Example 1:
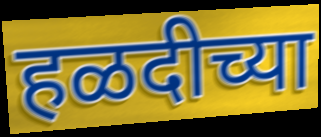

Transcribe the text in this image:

हळदीच्या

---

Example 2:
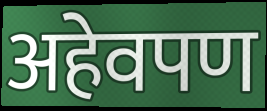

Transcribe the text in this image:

अहेवपण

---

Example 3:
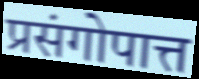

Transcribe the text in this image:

प्रसंगोपात्त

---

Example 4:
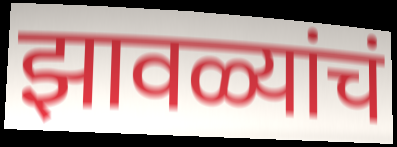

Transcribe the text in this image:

झावळ्यांचं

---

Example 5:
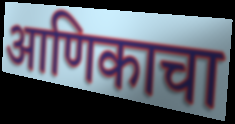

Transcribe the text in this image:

आणिकाचा